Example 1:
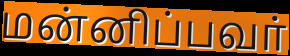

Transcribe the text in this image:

மன்னிப்பவர்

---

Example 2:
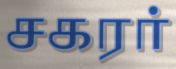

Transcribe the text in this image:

சகரர்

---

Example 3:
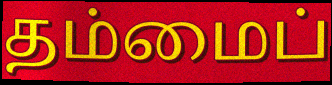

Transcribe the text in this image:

தம்மைப்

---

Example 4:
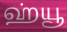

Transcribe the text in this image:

ஹ்யூ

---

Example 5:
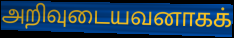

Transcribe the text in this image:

அறிவுடையவனாகக்